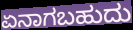
ಏನಾಗಬಹುದು